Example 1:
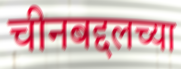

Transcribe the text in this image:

चीनबद्दलच्या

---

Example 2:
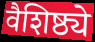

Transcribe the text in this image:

वैशिष्ठ्ये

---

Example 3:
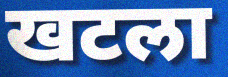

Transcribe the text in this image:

खटला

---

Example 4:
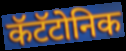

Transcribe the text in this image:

कॅटॅटोनिक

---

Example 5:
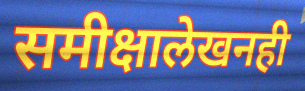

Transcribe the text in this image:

समीक्षालेखनही